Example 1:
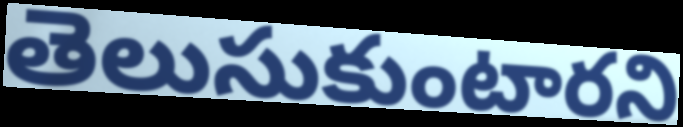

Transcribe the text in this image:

తెలుసుకుంటారని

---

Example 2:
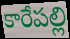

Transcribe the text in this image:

కారేపల్లి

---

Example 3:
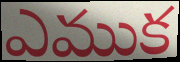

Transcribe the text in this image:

ఎముక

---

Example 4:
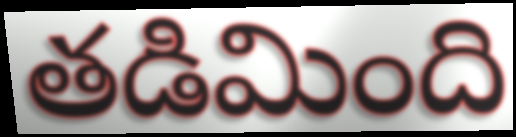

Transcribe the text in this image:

తడిమింది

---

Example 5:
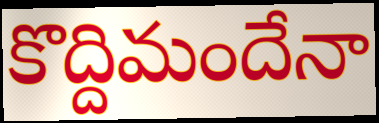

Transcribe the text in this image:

కొద్దిమందేనా